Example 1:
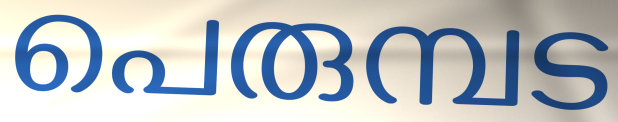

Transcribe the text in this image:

പെരുമ്പട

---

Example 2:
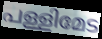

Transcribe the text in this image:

പള്ളിമേട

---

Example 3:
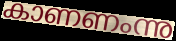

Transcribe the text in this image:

കാണണംന്നു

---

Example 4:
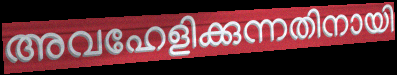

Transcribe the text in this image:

അവഹേളിക്കുന്നതിനായി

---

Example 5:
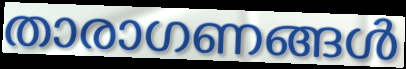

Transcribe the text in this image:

താരാഗണങ്ങൾ